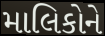
માલિકોને